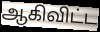
ஆகிவிட்ட